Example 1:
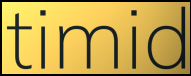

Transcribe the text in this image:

timid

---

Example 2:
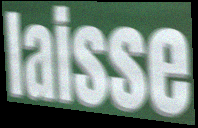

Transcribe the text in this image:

laisse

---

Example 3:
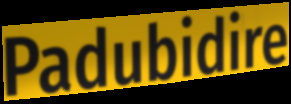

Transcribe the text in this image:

Padubidire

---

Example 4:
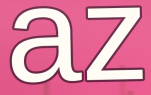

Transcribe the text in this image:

az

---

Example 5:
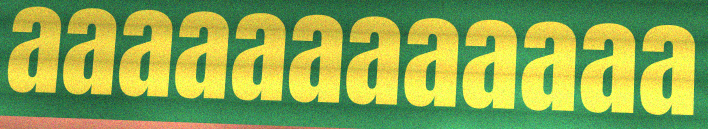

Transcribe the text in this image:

aaaaaaaaaaaa